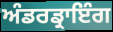
ਅੰਡਰਡ੍ਰਾਇੰਗ